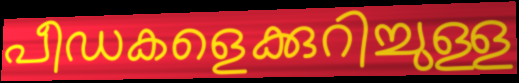
പീഡകളെക്കുറിച്ചുള്ള